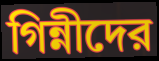
গিন্নীদের